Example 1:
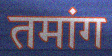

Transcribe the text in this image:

तमांग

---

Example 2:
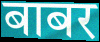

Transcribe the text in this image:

बाबर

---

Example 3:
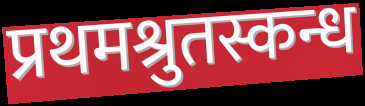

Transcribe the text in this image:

प्रथमश्रुतस्कन्ध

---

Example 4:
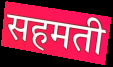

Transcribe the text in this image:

सहमती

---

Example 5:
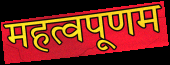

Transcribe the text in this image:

महत्वपूणम